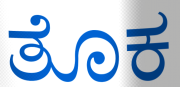
ತೊಕ